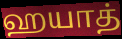
ஹயாத்